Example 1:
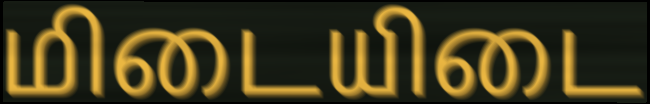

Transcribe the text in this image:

மிடையிடை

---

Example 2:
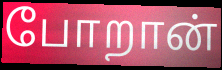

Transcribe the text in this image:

போறான்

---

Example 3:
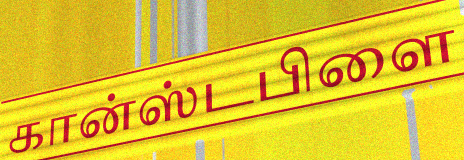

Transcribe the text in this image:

கான்ஸ்டபிளை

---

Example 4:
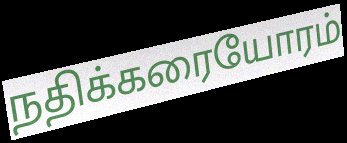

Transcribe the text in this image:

நதிக்கரையோரம்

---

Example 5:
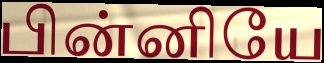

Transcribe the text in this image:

பின்னியே